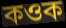
কওক